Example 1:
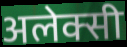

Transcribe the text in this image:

अलेक्सी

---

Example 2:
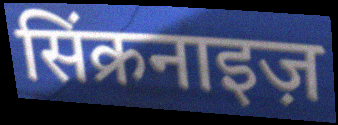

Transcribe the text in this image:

सिंक्रनाइज़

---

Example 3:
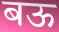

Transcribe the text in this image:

बऊ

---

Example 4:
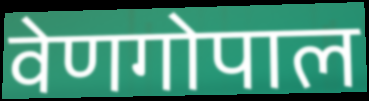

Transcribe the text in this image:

वेणगोपाल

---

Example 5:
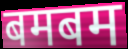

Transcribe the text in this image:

बमबम